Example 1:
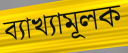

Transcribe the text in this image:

ব্যাখ্যামূলক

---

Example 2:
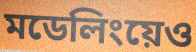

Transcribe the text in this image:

মডেলিংয়েও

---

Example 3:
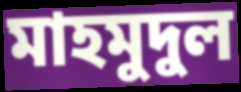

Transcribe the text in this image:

মাহমুদুল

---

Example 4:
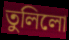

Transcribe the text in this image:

তুলিলো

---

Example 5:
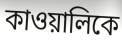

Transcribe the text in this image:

কাওয়ালিকে